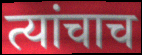
त्यांचाच